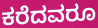
ಕರೆದವರೂ